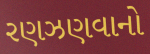
રણઝણવાનો